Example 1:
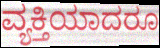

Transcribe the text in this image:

ವ್ಯಕ್ತಿಯಾದರೂ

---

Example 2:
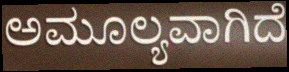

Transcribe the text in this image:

ಅಮೂಲ್ಯವಾಗಿದೆ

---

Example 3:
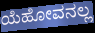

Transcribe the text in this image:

ಯೆಹೋವನಲ್ಲ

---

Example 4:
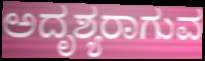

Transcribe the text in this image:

ಅದೃಶ್ಯರಾಗುವ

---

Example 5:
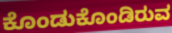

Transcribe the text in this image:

ಕೊಂಡುಕೊಂಡಿರುವ